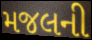
મજલની